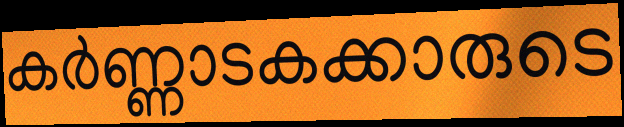
കർണ്ണാടകക്കാരുടെ